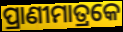
ପ୍ରାଣୀମାତ୍ରକେ